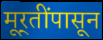
मूर्तींपासून